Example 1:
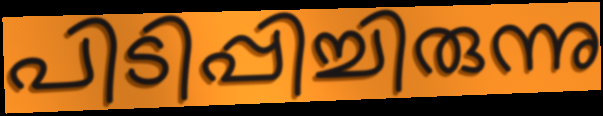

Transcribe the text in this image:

പിടിപ്പിച്ചിരുന്നു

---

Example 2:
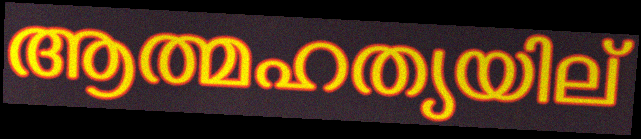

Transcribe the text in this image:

ആത്മഹത്യയില്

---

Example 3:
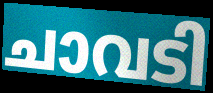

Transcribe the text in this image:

ചാവടി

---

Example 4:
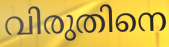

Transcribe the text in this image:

വിരുതിനെ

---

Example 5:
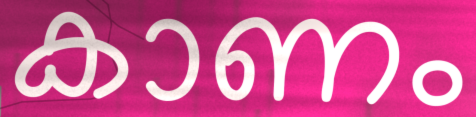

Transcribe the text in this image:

കാണം